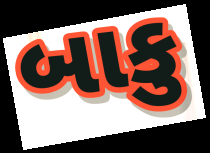
બાકુ